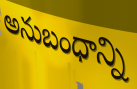
అనుబంధాన్ని